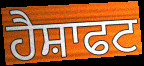
ਹੈਸ਼ਾਫਟ